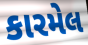
કારમેલ